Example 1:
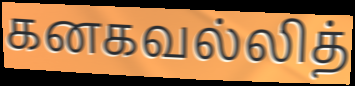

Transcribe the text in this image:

கனகவல்லித்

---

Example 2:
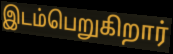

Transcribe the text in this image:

இடம்பெறுகிறார்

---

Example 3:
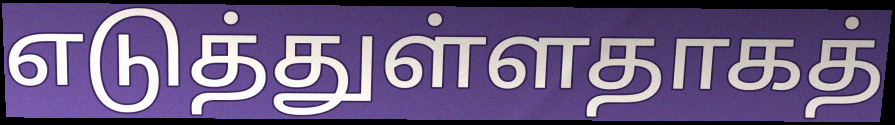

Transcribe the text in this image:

எடுத்துள்ளதாகத்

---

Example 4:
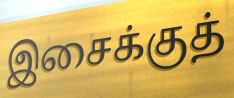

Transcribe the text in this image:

இசைக்குத்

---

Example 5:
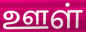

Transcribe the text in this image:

ஊள்